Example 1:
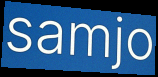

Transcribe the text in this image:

samjo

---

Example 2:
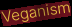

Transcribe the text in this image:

Veganism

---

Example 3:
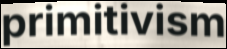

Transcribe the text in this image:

primitivism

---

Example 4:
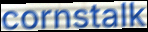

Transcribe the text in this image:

cornstalk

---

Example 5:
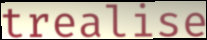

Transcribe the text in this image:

trealise